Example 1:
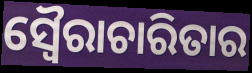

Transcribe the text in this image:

ସ୍ୱୈରାଚାରିତାର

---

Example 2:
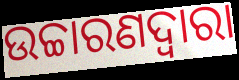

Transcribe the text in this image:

ଉଚ୍ଚାରଣଦ୍ଵାରା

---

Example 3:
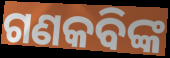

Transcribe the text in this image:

ଗଣକବିଙ୍କ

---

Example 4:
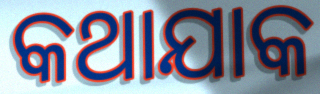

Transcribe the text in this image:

କଥାଯାକ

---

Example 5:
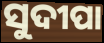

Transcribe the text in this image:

ସୁଦୀପା